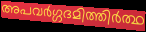
അപവർഗ്ഗദമിത്തിർത്ഥ